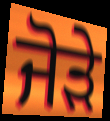
ਜੋੜੇ